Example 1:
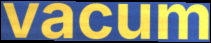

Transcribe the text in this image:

vacum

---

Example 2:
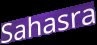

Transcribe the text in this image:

Sahasra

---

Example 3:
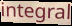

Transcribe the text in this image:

integral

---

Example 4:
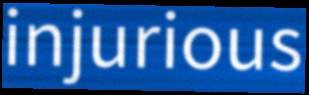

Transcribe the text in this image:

injurious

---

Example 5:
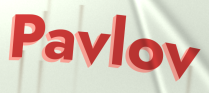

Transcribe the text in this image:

Pavlov